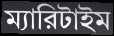
ম্যারিটাইম